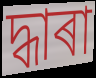
দ্ধাৰা